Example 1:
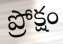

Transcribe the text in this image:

ప్రోక్షం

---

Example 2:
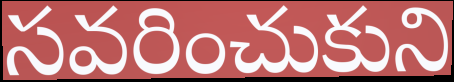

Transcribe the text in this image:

సవరించుకుని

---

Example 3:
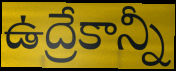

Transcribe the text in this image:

ఉద్రేకాన్నీ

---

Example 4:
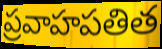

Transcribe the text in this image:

ప్రవాహపతిత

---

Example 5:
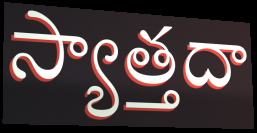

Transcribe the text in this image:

స్యాత్తదా